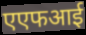
एएफआई